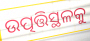
ଉତ୍ପତ୍ତିସ୍ଥଳକୁ